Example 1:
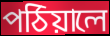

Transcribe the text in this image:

পঠিয়ালে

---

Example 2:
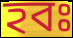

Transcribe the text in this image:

হবঃ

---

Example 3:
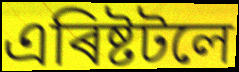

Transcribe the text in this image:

এৰিষ্টটলে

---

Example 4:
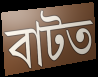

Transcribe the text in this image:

বাটত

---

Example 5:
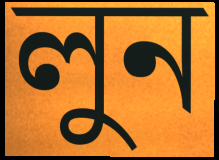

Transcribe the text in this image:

লুন